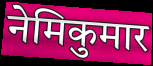
नेमिकुमार